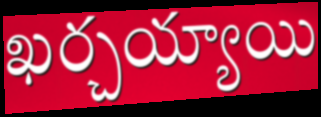
ఖర్చయ్యాయి